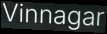
Vinnagar